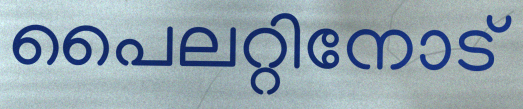
പൈലറ്റിനോട്